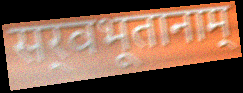
सर्वभूतानाम्